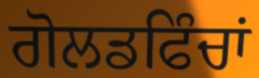
ਗੋਲਡਫਿੰਚਾਂ